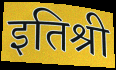
इतिश्री